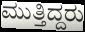
ಮುತ್ತಿದ್ದರು